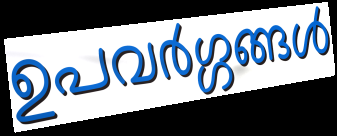
ഉപവർഗ്ഗങ്ങൾ